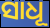
ସାଧୂ